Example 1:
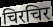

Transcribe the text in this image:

चिरचिर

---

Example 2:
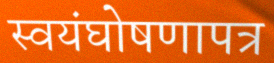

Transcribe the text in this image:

स्वयंघोषणापत्र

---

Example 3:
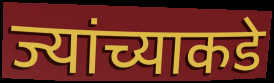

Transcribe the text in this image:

ज्यांच्याकडे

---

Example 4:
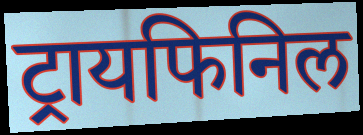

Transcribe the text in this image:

ट्रायफिनिल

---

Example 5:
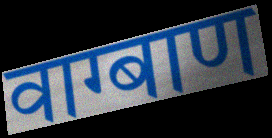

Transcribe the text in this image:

वाग्बाण